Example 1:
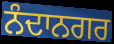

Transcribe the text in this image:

ਨੰਦਾਨਗਰ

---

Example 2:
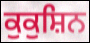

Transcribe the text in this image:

ਕੁਕੁਸ਼ਿਨ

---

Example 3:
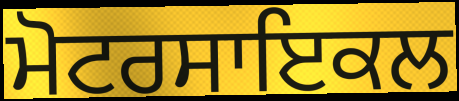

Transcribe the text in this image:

ਮੋਟਰਸਾਇਕਲ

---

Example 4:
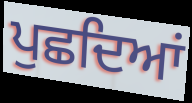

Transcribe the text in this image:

ਪੁਛਦਿਆਂ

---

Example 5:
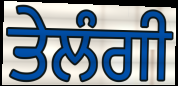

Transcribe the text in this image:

ਤੇਲੰਗੀ